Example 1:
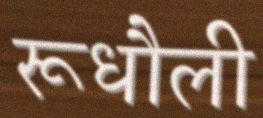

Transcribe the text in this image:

रूधौली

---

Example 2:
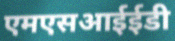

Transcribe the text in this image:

एमएसआईईडी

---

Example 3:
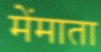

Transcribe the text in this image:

मेंमाता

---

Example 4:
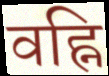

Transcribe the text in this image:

वह्नि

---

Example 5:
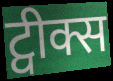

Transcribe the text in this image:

ट्वीक्स